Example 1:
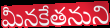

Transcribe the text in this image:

మీనకేతనుని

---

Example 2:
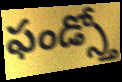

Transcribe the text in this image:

ఫండ్స్తో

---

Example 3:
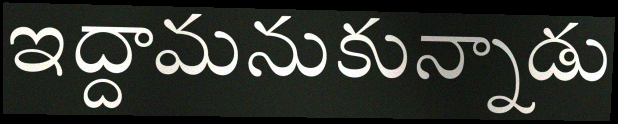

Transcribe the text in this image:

ఇద్దామనుకున్నాడు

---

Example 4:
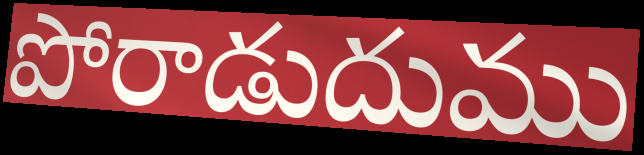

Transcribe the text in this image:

పోరాడుదుము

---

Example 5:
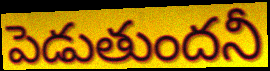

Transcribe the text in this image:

పెడుతుందనీ